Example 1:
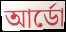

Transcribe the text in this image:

আর্ডো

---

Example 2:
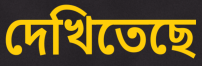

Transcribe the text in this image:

দেখিতেছে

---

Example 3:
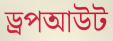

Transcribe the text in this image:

ড্রপআউট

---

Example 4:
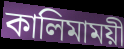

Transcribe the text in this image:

কালিমাময়ী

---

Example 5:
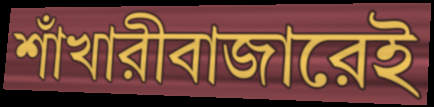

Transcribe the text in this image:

শাঁখারীবাজারেই